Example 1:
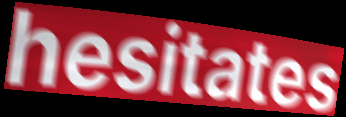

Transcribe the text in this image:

hesitates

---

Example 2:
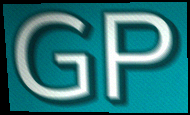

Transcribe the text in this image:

GP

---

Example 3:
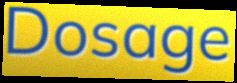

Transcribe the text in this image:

Dosage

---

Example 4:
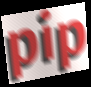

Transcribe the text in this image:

pip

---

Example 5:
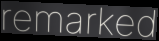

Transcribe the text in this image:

remarked